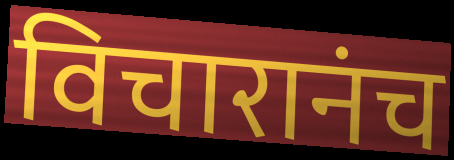
विचारानंच